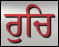
ਰੁਚਿ